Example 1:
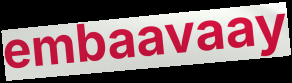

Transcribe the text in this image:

embaavaay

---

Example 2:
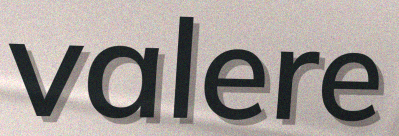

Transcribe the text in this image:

valere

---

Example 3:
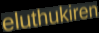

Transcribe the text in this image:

eluthukiren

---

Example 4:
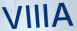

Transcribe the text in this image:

VIIIA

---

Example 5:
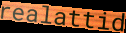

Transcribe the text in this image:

realattid